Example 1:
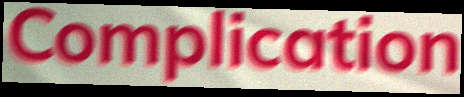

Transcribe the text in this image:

Complication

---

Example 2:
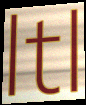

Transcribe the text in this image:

ltl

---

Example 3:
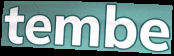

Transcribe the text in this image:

tembe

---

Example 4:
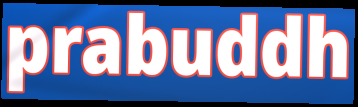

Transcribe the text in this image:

prabuddh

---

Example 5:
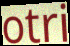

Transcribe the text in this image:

otri